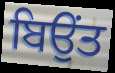
ਬਿਉਂਤ